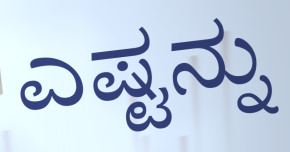
ಎಷ್ಟನ್ನು